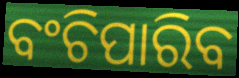
ବଂଚିପାରିବ